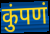
कुंपणं